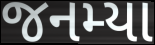
જનમ્યા